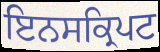
ਇਨਸਕ੍ਰਿਪਟ